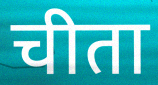
चीता